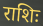
राशिः